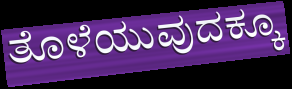
ತೊಳೆಯುವುದಕ್ಕೂ